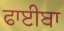
ਫਾਈਬਾ